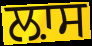
ਲ਼ਾਸ